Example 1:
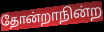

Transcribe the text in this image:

தோன்றாநின்ற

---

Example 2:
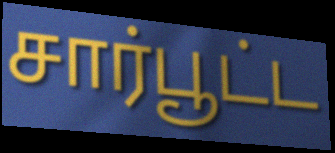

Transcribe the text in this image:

சார்பூட்ட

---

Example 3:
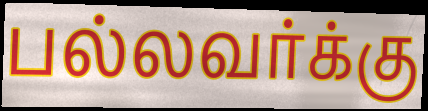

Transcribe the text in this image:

பல்லவர்க்கு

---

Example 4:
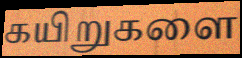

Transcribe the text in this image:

கயிறுகளை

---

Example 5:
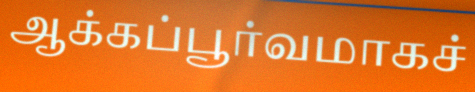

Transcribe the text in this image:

ஆக்கப்பூர்வமாகச்